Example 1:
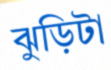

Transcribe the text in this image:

ঝুড়িটা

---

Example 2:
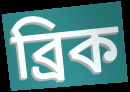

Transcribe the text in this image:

ব্রিক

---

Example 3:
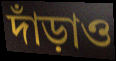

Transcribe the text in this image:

দাঁড়াও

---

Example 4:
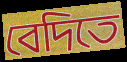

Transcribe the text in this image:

বেদিতে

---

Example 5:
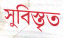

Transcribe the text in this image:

সুবিস্তৃত